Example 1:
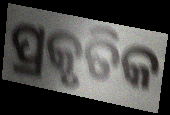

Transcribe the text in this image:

ପ୍ରକୃତିକ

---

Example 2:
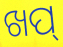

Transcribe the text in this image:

ଖପ୍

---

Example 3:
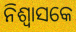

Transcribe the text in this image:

ନିଶ୍ଵାସକେ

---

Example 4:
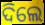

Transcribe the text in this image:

ଦିଲେ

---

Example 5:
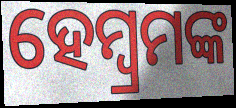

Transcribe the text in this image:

ହେମ୍ବ୍ରମଙ୍କ